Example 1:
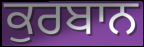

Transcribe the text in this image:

ਕੁਰਬਾਨ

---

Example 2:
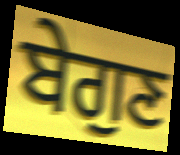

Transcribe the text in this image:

ਬੇਗੁਣ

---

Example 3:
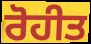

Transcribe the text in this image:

ਰੋਹੀਤ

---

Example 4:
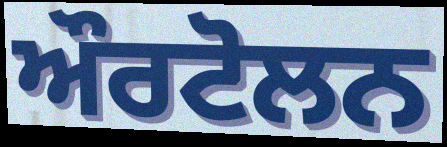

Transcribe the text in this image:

ਔਰਟੋਲਨ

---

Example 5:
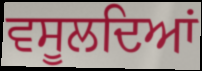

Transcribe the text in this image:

ਵਸੂਲਦਿਆਂ